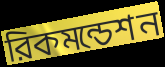
রিকমন্ডেশন